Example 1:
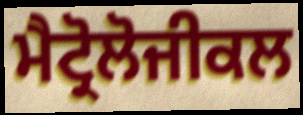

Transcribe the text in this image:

ਮੈਟ੍ਰੋਲੋਜੀਕਲ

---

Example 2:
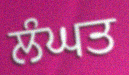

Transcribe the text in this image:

ਲੰਘਤ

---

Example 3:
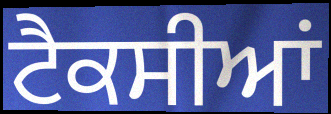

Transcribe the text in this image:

ਟੈਕਸੀਆਂ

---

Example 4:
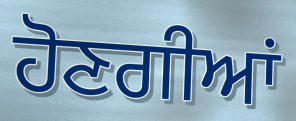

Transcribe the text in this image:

ਹੋਣਗੀਆਂ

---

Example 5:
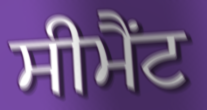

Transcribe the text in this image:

ਸੀਮੈੰਟ